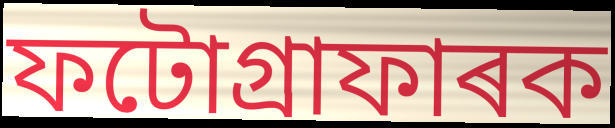
ফটোগ্ৰাফাৰক